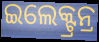
ଇଲେକ୍ଟ୍ରନ୍ର